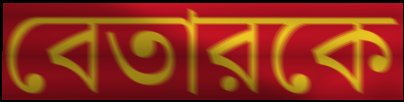
বেতারকে